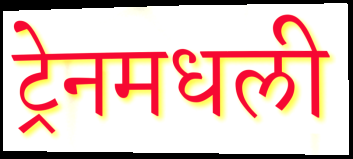
ट्रेनमधली